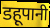
डहूपानी